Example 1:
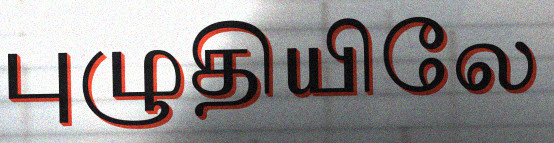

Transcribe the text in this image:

புழுதியிலே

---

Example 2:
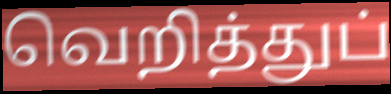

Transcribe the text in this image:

வெறித்துப்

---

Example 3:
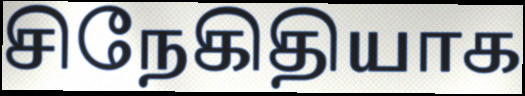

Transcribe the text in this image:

சிநேகிதியாக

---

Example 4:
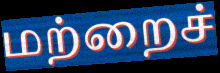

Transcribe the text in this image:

மற்றைச்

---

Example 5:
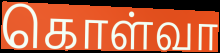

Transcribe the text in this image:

கொள்வா